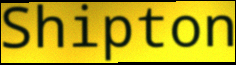
Shipton